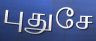
புதுசே